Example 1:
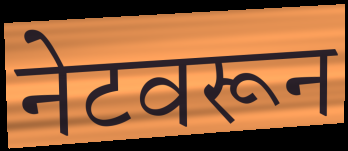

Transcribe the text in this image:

नेटवरून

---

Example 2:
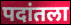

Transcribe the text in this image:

पदांतला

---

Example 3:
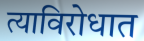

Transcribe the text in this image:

त्याविरोधात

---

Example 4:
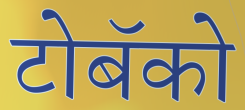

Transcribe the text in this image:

टोबॅको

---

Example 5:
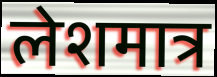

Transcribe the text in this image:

लेशमात्र